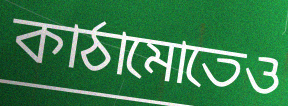
কাঠামোতেও